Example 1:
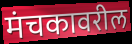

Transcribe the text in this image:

मंचकावरील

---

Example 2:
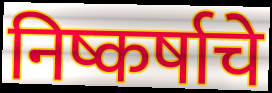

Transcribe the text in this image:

निष्कर्षाचे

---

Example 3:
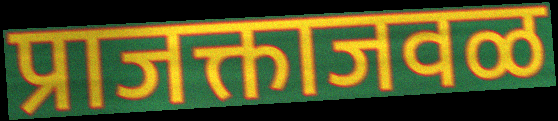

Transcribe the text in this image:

प्राजक्ताजवळ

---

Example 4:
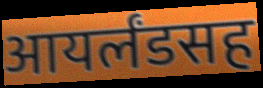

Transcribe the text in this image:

आयर्लंडसह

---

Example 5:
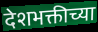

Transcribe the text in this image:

देशभक्तीच्या